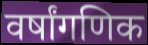
वर्षांगणिक